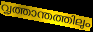
വൃത്താന്തത്തിലും